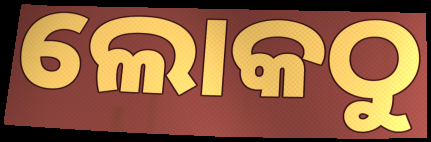
ଲୋକଠୁ